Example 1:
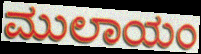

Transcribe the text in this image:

ಮುಲಾಯಂ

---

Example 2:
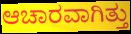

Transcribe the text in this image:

ಆಚಾರವಾಗಿತ್ತು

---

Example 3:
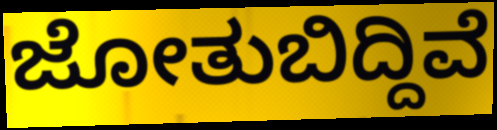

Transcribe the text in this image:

ಜೋತುಬಿದ್ದಿವೆ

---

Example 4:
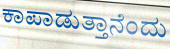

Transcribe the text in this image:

ಕಾಪಾಡುತ್ತಾನೆಂದು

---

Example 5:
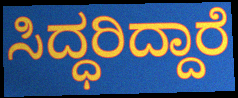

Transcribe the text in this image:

ಸಿದ್ಧರಿದ್ದಾರೆ